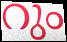
റും